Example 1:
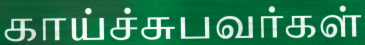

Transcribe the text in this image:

காய்ச்சுபவர்கள்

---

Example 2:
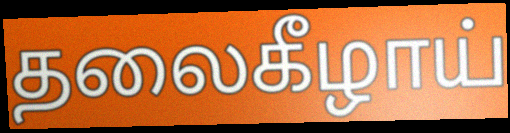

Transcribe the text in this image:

தலைகீழாய்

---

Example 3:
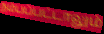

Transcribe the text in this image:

நம்பப்பட்டாலும்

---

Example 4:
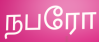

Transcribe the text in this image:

நபரோ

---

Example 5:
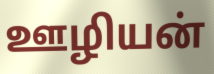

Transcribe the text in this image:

ஊழியன்